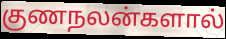
குணநலன்களால்